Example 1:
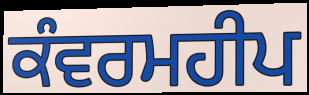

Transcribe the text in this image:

ਕੰਵਰਮਹੀਪ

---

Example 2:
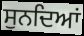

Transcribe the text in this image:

ਸੁਨਦਿਆਂ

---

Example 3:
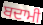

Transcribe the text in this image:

ਬਦਾਮੀ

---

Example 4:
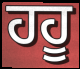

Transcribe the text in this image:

ਹਹੂ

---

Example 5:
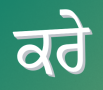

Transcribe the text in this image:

ਕਰੇ